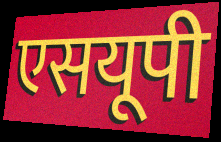
एसयूपी